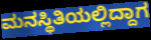
ಮನಸ್ಥಿತಿಯಲ್ಲಿದ್ದಾಗ